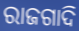
ରାଜଗାଦି